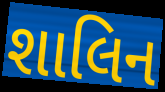
શાલિન